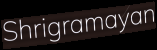
Shrigramayan